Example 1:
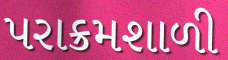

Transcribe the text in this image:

પરાક્રમશાળી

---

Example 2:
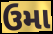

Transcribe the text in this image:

ઉમા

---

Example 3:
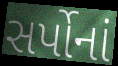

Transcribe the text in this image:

સર્પોનાં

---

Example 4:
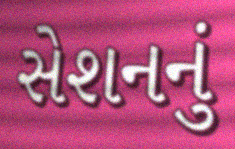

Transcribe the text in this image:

સેશનનું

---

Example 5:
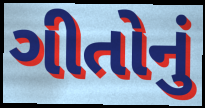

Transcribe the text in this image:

ગીતોનું